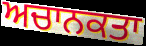
ਅਚਾਨਕਤਾ